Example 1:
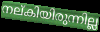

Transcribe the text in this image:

നല്കിയിരുന്നില്ല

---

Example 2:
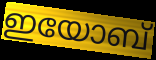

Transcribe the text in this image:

ഇയോബ്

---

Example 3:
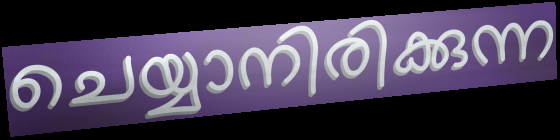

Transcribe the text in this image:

ചെയ്യാനിരിക്കുന്ന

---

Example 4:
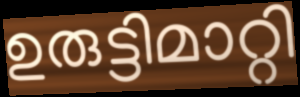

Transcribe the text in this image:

ഉരുട്ടിമാറ്റി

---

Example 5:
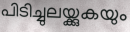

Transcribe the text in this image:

പിടിച്ചുലയ്ക്കുകയും